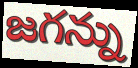
జగన్ను